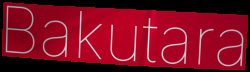
Bakutara